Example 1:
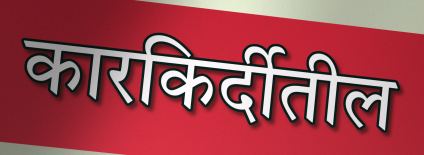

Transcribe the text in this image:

कारकिर्दीतील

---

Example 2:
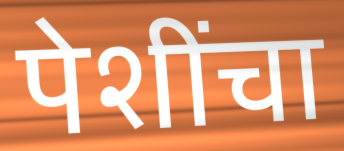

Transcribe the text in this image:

पेशींचा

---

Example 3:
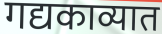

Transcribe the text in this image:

गद्यकाव्यात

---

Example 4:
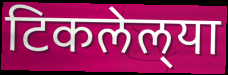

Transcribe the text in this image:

टिकलेल्या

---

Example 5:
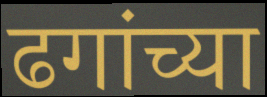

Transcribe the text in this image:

ढगांच्या